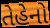
તેહેનો